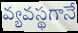
వ్యవస్థగానే